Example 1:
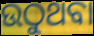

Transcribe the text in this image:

ଉଠୁଥବା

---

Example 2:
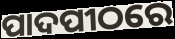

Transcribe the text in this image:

ପାଦପୀଠରେ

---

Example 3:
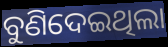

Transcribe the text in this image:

ବୁଣିଦେଇଥିଲା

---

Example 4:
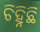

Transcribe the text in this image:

ଚିହ୍ନିଛି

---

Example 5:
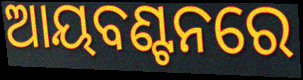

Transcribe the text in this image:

ଆୟବଣ୍ଟନରେ